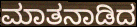
ಮಾತನಾಡಿದ